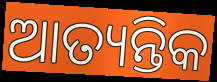
ଆତ୍ୟନ୍ତିକ